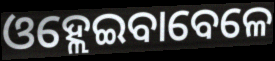
ଓହ୍ଲେଇବାବେଳେ